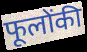
फूलोंकी